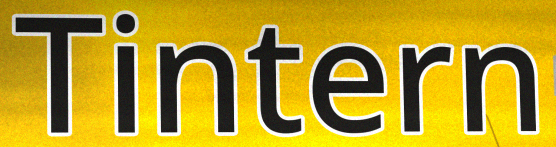
Tintern